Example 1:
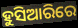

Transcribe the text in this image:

ହୁସିଆରିରେ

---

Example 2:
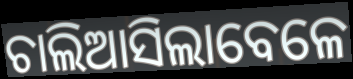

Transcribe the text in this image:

ଚାଲିଆସିଲାବେଳେ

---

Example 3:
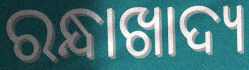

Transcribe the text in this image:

ରନ୍ଧାଖାଦ୍ୟ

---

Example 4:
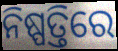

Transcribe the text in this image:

ନିଷ୍ପତ୍ତିରେ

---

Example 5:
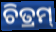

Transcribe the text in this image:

ଚିତ୍ରମ୍